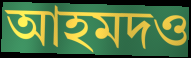
আহমদও